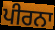
ਪੀਰਨਾ